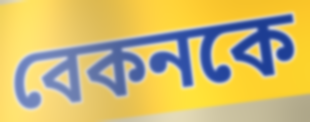
বেকনকে